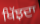
ਖਿੱਝਦਾ